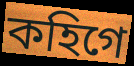
কহিগে